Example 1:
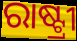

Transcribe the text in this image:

ରାଷ୍ଟ୍ରୀ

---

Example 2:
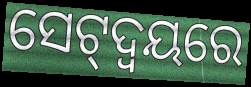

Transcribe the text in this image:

ସେଟ୍‌ଦ୍ଵୟରେ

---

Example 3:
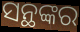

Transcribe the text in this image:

ସନ୍ଥଙ୍କର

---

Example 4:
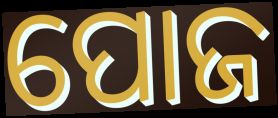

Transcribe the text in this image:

ପୋଜ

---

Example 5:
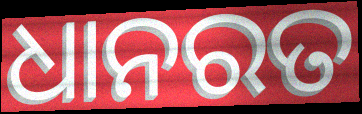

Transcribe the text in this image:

ଧାନରତ